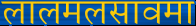
लालमलसावमा